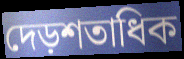
দেড়শতাধিক